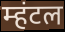
म्हंटल